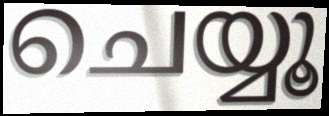
ചെയ്യൂ